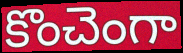
కొంచెంగా